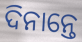
ଦିନାନ୍ତେ